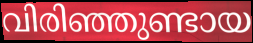
വിരിഞ്ഞുണ്ടായ